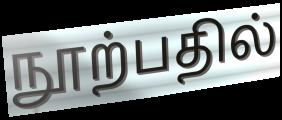
நூற்பதில்